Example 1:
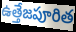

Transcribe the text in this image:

ఉత్తేజపూరిత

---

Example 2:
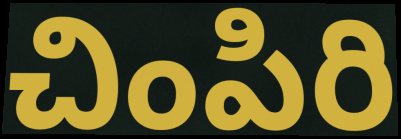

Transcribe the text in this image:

చింపిరి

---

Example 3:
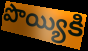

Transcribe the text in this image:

పొయ్యికి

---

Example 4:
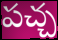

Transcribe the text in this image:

పచ్చ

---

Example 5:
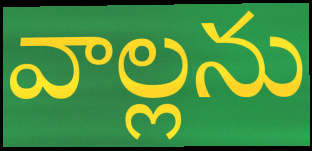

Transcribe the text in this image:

వాల్లను